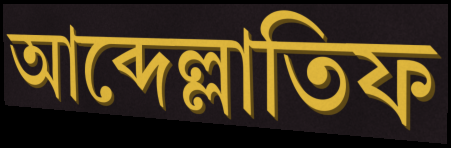
আব্দেল্লাতিফ